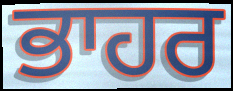
ਭਾਹਰ